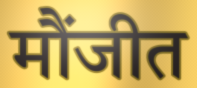
मौंजीत